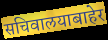
सचिवालयाबाहेर